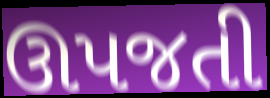
ઊપજતી